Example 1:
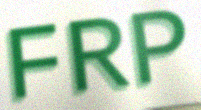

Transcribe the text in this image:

FRP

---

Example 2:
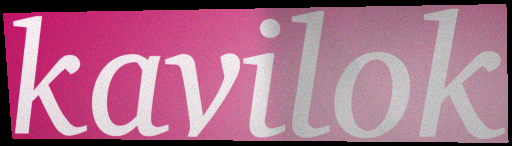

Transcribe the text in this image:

kavilok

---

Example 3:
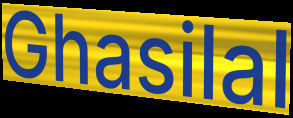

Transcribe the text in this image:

Ghasilal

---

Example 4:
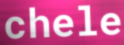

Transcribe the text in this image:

chele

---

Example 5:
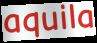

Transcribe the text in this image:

aquila